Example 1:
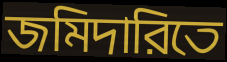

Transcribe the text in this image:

জমিদারিতে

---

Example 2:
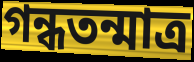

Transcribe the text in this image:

গন্ধতন্মাত্র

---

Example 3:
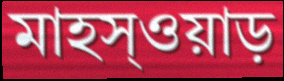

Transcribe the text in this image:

মাহস্ওয়াড়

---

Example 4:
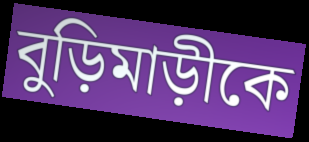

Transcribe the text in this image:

বুড়িমাড়ীকে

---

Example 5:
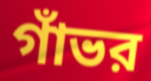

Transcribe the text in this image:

গাঁভর